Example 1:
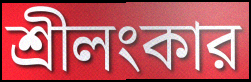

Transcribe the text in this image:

শ্রীলংকার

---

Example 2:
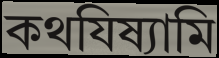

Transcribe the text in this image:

কথযিষ্যামি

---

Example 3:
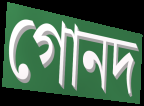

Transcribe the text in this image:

গোনদ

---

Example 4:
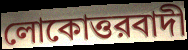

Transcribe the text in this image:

লোকোত্তরবাদী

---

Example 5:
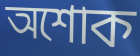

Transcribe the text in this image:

অশোক